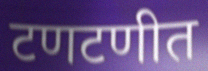
टणटणीत